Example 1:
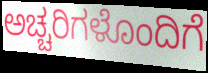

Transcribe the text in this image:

ಅಚ್ಚರಿಗಳೊಂದಿಗೆ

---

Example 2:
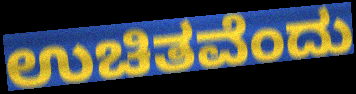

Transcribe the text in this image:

ಉಚಿತವೆಂದು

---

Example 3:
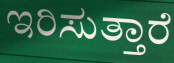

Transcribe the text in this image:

ಇರಿಸುತ್ತಾರೆ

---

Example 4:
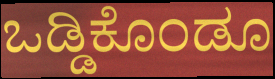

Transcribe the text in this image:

ಒಡ್ಡಿಕೊಂಡೂ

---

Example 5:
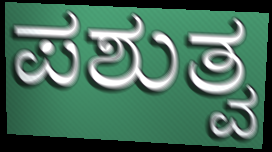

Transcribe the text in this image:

ಪಶುತ್ವ